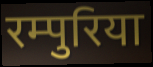
रम्पुरिया